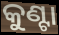
କୁଣ୍ଟା